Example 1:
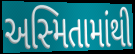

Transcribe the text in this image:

અસ્મિતામાંથી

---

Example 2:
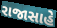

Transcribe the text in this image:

રાજાસાહે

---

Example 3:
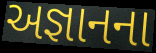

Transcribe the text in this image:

અજ્ઞાનના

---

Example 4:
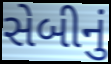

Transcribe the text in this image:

સેબીનું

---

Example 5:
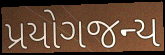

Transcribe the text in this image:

પ્રયોગજન્ય